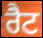
ਰੈਟ